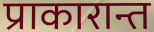
प्राकारान्त